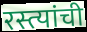
रस्त्यांची